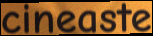
cineaste